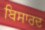
ਬਿਸਾਰਦ